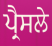
ਪ੍ਰੈਸਲੇ